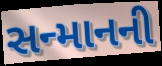
સન્માનની